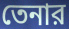
তেনার